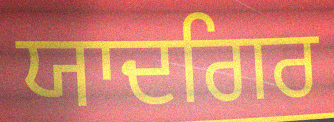
ਯਾਦਗਿਰ